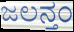
ಜಲನ್ತಂ